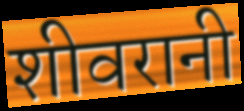
शीवरानी